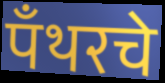
पँथरचे